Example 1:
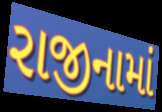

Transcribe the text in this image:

રાજીનામાં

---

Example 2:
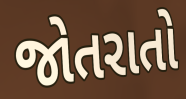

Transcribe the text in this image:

જોતરાતો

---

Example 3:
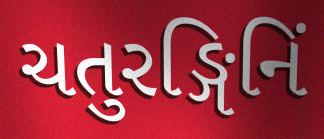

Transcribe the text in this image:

ચતુરઙ્ગિનિં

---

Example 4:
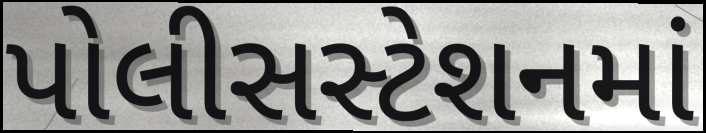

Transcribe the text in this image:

પોલીસસ્ટેશનમાં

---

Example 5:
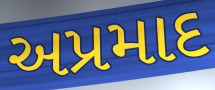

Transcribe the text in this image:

અપ્રમાદ